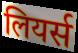
लियर्स